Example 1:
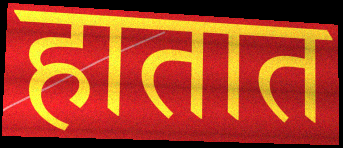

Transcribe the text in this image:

हातात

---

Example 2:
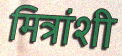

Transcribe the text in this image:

मित्रांशी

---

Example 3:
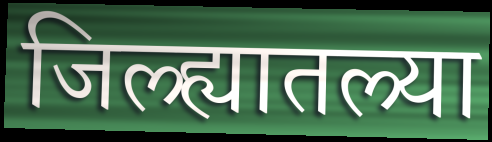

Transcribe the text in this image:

जिल्ह्यातल्या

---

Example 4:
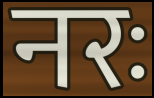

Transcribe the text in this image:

नरः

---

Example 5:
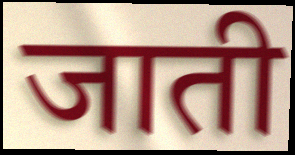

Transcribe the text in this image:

जाती